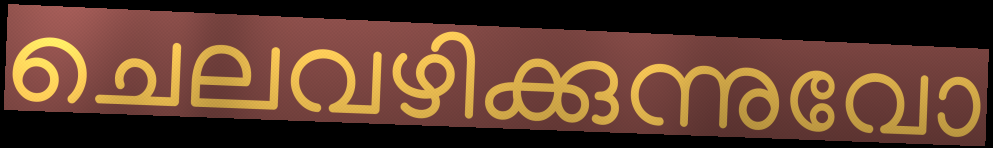
ചെലവഴിക്കുന്നുവോ